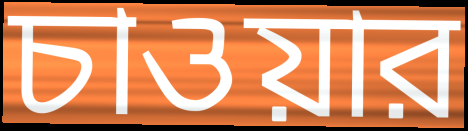
চাওয়ার